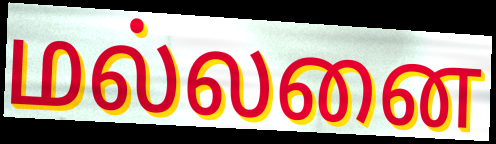
மல்லனை